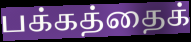
பக்கத்தைக்